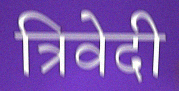
त्रिवेदी